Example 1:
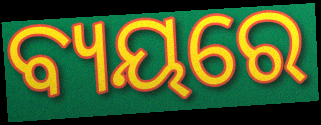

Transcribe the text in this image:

ବ୍ୟୟରେ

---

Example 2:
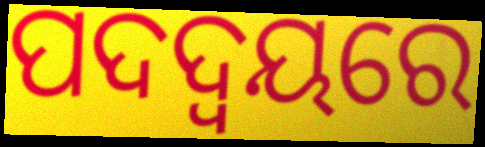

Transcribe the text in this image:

ପଦଦ୍ୱୟରେ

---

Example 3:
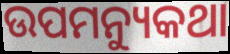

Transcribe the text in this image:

ଉପମନ୍ୟୁକଥା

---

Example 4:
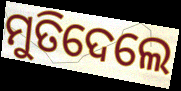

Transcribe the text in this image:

ମୁତିଦେଲେ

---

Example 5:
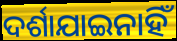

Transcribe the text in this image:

ଦର୍ଶାଯାଇନାହିଁ